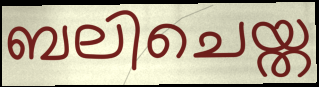
ബലിചെയ്ത